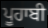
ਪੂਹਾਬੀ